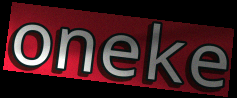
oneke